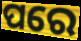
ପରେ